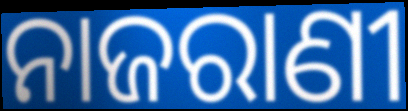
ନାଜରାଣୀ